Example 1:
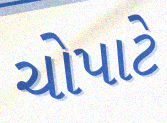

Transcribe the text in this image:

ચોપાટે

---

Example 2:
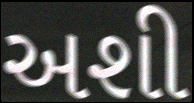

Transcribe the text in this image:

અશી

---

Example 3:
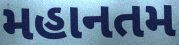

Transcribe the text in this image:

મહાનતમ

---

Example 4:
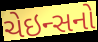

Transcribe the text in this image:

ચેઇન્સનો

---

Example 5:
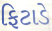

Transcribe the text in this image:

ફિટાડે